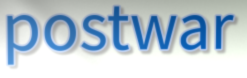
postwar